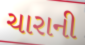
ચારાની